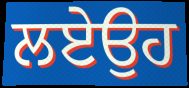
ਲਏਉਹ